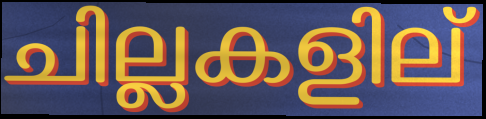
ചില്ലകളില്